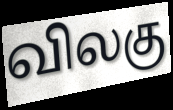
விலகு